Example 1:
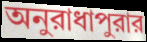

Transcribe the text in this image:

অনুরাধাপুরার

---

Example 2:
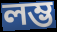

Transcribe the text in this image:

লম্ভ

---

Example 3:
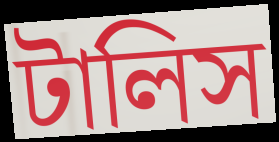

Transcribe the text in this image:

টালিস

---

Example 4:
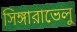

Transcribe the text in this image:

সিঙ্গারাভেলু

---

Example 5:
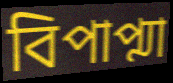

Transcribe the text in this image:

বিপাপ্মা